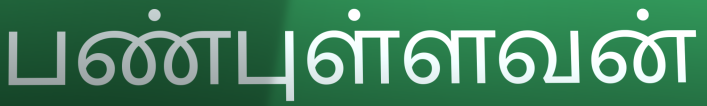
பண்புள்ளவன்